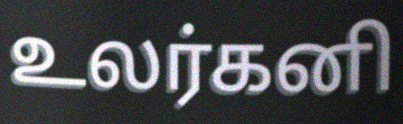
உலர்கனி